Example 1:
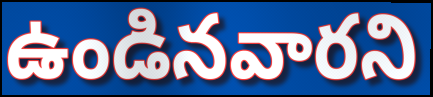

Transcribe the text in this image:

ఉండినవారని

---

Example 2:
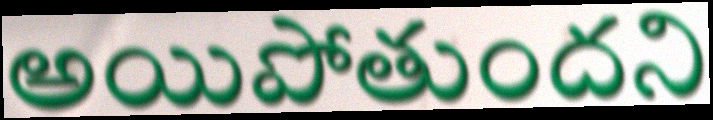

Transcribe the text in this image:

అయిపోతుందని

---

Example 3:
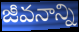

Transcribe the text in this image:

జీవనాన్ని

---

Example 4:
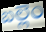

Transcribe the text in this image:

బల్లెం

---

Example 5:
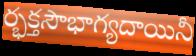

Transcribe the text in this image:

ర్భక్తసౌభాగ్యదాయినీ